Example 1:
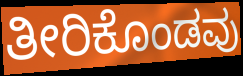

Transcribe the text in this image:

ತೀರಿಕೊಂಡವು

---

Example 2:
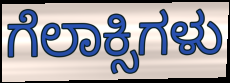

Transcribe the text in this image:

ಗೆಲಾಕ್ಸಿಗಳು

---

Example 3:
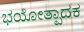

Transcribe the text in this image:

ಭಯೋತ್ಪಾದಕ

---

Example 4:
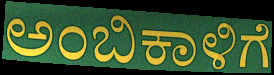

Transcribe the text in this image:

ಅಂಬಿಕಾಳಿಗೆ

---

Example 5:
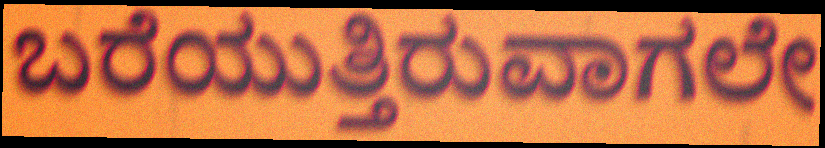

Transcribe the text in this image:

ಬರೆಯುತ್ತಿರುವಾಗಲೇ